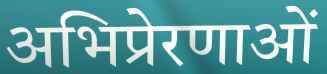
अभिप्रेरणाओं